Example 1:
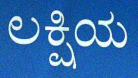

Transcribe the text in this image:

ಲಕ್ಷಿಯ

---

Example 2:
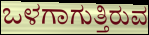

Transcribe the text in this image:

ಒಳಗಾಗುತ್ತಿರುವ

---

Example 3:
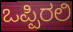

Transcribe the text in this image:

ಒಪ್ಪಿರಲಿ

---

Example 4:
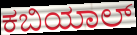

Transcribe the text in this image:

ಕಬಿಯಾಲ್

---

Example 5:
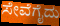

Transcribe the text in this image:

ಸೇವೆಗೈದು